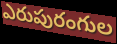
ఎరుపురంగుల